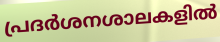
പ്രദർശനശാലകളിൽ